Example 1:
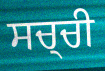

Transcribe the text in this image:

ਸਚ੍ਚੀ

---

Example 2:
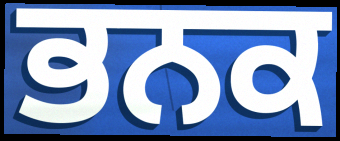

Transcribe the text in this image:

ਭਨਕ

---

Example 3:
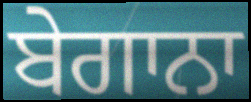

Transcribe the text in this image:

ਬੇਗਾਨਾ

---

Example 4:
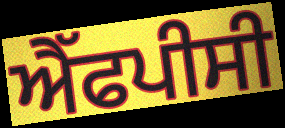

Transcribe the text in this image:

ਐੱਫਪੀਸੀ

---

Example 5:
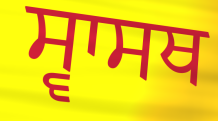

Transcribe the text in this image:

ਸ੍ਵਾਸਥ